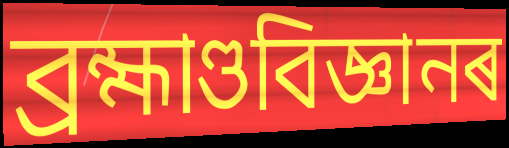
ব্ৰহ্মাণ্ডবিজ্ঞানৰ